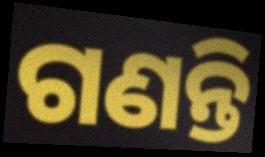
ଗଣନ୍ତି